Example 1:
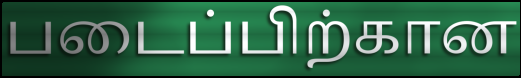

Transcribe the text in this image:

படைப்பிற்கான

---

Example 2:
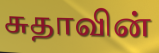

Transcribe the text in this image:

சுதாவின்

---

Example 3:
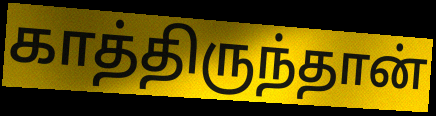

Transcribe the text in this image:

காத்திருந்தான்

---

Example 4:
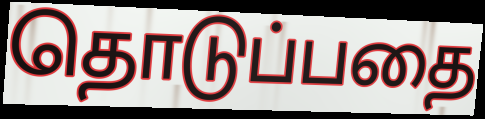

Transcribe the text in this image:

தொடுப்பதை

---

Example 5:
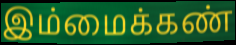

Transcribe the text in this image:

இம்மைக்கண்